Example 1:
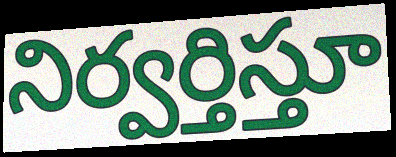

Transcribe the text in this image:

నిర్వర్తిస్తూ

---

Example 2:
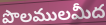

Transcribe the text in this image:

పొలములమీద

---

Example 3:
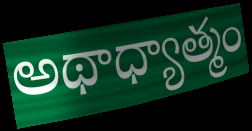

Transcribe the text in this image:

అథాధ్యాత్మం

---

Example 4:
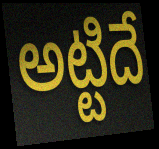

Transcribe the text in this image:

అట్టిదే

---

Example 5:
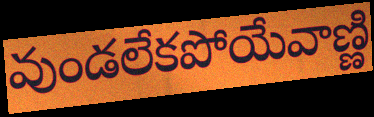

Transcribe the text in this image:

వుండలేకపోయేవాణ్ణి